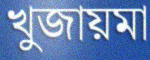
খুজায়মা